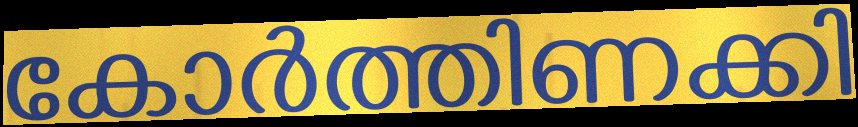
കോർത്തിണക്കി